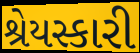
શ્રેયસ્કારી